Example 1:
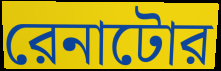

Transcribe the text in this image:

রেনাটোর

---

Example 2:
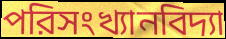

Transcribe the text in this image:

পরিসংখ্যানবিদ্যা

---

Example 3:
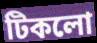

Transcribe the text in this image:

টিকলো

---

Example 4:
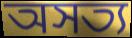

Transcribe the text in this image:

অসত্য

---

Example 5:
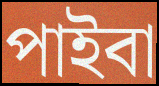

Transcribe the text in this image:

পাইবা